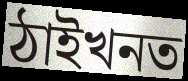
ঠাইখনত